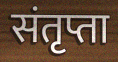
संतृप्ता